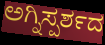
ಅಗ್ನಿಸ್ಪರ್ಶದ